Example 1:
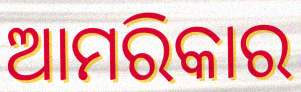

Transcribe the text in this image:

ଆମରିକାର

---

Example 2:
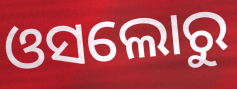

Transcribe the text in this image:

ଓସଲୋରୁ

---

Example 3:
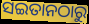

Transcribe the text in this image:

ସଇତାନଠାରୁ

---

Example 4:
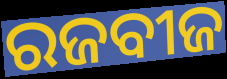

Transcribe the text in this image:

ରଜବୀଜ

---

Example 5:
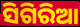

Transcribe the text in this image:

ସିଗିରିଆ